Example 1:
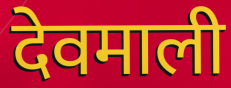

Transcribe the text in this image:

देवमाली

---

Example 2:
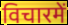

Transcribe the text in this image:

विचारमें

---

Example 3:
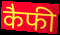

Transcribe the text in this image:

कैफी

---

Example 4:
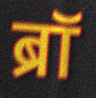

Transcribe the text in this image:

ब्रॉ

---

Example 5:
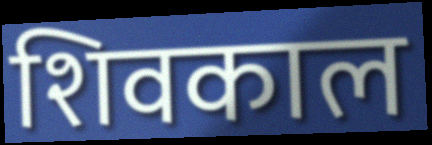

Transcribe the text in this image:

शिवकाल